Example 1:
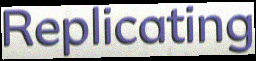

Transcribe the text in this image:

Replicating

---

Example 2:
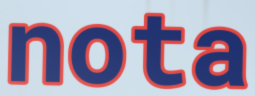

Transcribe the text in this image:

nota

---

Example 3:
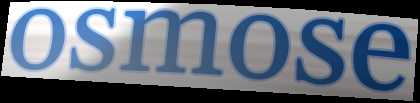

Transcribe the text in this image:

osmose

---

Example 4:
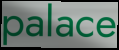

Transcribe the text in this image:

palace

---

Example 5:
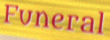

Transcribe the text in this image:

Funeral